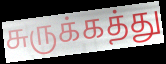
சுருக்கத்து